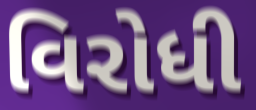
વિરોધી